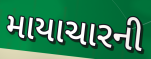
માયાચારની